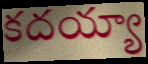
కదయ్యా